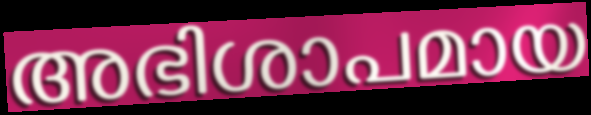
അഭിശാപമായ